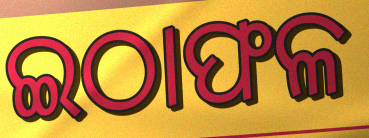
ଇଠାଫଳ